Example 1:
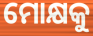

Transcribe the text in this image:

ମୋକ୍ଷକୁ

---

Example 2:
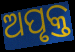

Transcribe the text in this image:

ଅପୃକ୍ତ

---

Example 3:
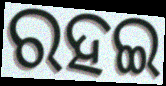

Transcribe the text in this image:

ରହଇ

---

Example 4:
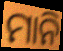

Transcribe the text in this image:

ମାନି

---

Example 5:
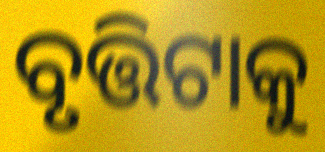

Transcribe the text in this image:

ବୃତ୍ତିଟାକୁ